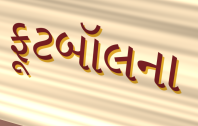
ફૂટબૉલના